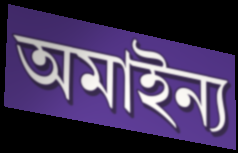
অমাইন্য